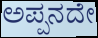
ಅಪ್ಪನದೇ